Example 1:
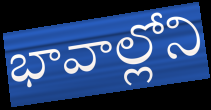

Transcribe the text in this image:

భావాల్లోని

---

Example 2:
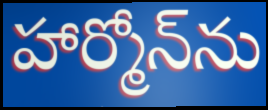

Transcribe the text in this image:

హార్మోన్‌ను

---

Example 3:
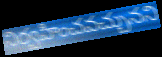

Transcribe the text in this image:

నిర్వహించవచ్చునని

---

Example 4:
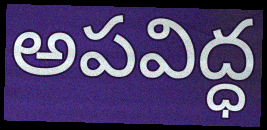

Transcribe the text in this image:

అపవిద్ధ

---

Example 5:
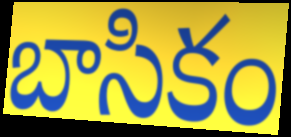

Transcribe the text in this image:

బాసికం